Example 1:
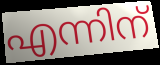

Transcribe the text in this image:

എന്നിന്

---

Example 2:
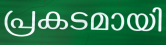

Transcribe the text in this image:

പ്രകടമായി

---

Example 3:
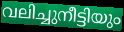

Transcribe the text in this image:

വലിച്ചുനീട്ടിയും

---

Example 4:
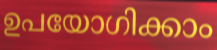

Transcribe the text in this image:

ഉപയോഗിക്കാം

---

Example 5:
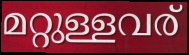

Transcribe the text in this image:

മറ്റുള്ളവര്